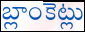
బ్లాంకెట్లు